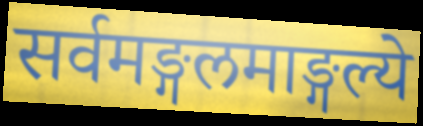
सर्वमङ्गलमाङ्गल्ये